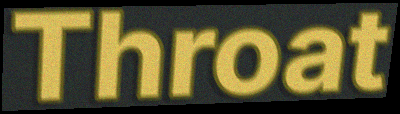
Throat